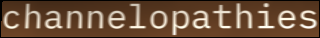
channelopathies